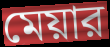
মেয়ার